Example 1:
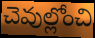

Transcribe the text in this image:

చెవుల్లోంచి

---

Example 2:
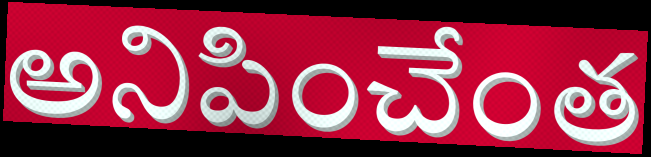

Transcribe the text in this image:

అనిపించేంత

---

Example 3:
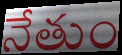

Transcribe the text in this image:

నేతుం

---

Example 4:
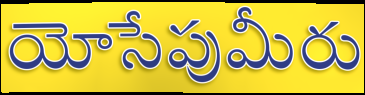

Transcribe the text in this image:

యోసేపుమీరు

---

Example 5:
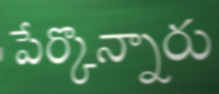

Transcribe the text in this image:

పేర్కొన్నారు